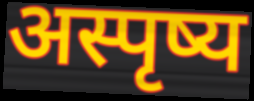
अस्पृष्य